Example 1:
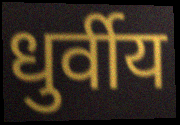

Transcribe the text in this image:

धुर्वीय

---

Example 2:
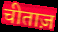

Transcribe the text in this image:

चीताज़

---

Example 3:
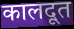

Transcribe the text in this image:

कालदूत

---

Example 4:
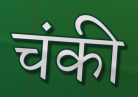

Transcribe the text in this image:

चंकी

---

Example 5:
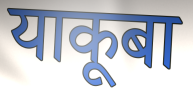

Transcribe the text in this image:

याकूबा